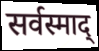
सर्वस्माद्